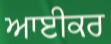
ਆਈਕਰ